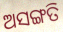
ଅସଙ୍ଗତି